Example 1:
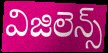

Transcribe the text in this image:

విజిలెన్స్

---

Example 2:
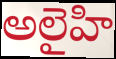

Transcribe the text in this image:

అలైహి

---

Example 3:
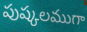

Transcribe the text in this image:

పుష్కలముగా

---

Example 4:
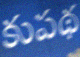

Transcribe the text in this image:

కుపథ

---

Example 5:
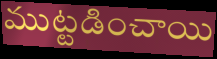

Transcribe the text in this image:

ముట్టడించాయి